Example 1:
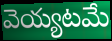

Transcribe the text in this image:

వెయ్యటమే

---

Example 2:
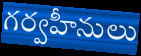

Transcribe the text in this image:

గర్వహీనులు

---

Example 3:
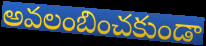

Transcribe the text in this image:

అవలంబించకుండా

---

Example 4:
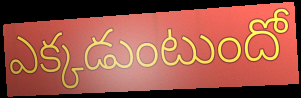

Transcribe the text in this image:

ఎక్కడుంటుందో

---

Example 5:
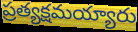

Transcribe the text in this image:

ప్రత్యక్షమయ్యారు